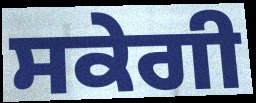
ਸਕੇਗੀ